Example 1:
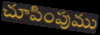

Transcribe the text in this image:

చూపింపుము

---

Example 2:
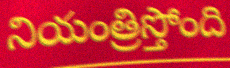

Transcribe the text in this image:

నియంత్రిస్తోంది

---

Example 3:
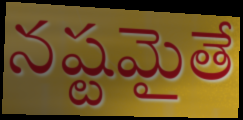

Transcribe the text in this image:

నష్టమైతే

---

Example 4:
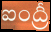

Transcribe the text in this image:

ఐంద్రీ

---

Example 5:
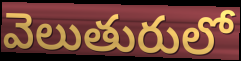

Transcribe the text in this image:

వెలుతురులో